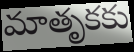
మాతృకకు